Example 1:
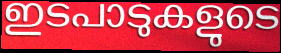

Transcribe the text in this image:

ഇടപാടുകളുടെ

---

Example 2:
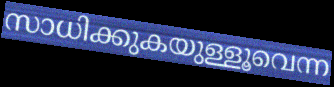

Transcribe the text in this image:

സാധിക്കുകയുള്ളൂവെന്ന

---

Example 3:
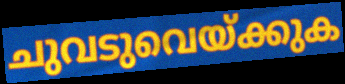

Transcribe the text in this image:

ചുവടുവെയ്ക്കുക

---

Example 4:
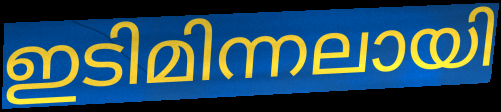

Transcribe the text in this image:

ഇടിമിന്നലായി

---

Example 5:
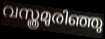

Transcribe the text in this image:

വസ്ത്രമുരിഞ്ഞു